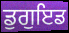
ਡੁਗੁਇਡ